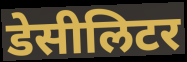
डेसीलिटर